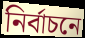
নিৰ্বাচনে